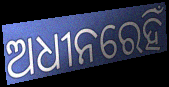
ଅଧୀନରେହିଁ